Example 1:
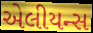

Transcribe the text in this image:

એલીયન્સ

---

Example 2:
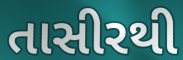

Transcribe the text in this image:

તાસીરથી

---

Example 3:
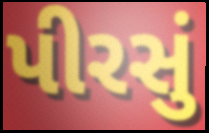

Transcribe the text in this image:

પીરસું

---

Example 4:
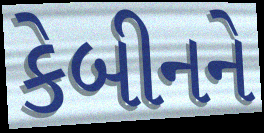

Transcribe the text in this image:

કેબીનને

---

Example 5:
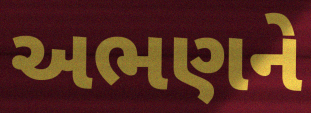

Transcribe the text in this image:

અભણને